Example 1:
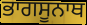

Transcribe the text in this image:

ਭਾਗਸੂਨਾਥ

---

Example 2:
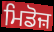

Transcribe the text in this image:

ਮਿਡੋਜ਼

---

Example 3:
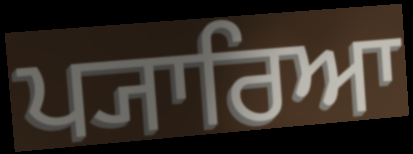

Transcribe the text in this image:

ਪ੍ਯਾਰਿਆ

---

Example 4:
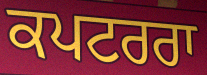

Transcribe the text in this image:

ਕਪਟਰਰਾ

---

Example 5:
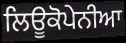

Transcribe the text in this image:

ਲਿਊਕੋਪੇਨੀਆ